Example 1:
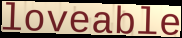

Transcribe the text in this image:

loveable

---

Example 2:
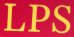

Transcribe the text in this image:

LPS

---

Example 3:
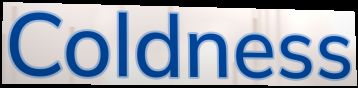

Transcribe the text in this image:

Coldness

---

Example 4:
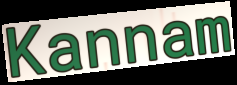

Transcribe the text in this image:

Kannam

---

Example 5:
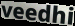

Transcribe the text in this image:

veedhi